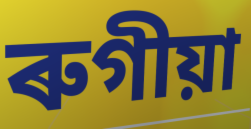
ৰুগীয়া